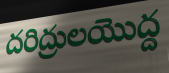
దరిద్రులయొద్ద